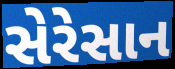
સેરેસાન